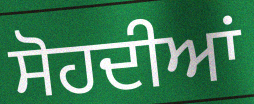
ਸੋਹਦੀਆਂ